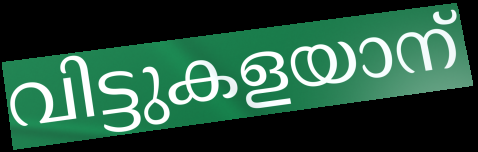
വിട്ടുകളയാന്